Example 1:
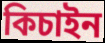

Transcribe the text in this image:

কিচাইন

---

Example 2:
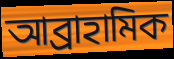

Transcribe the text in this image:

আব্রাহামিক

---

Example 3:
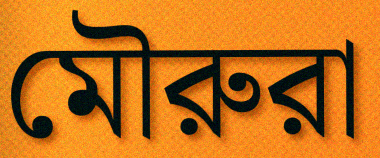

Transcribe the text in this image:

মৌরুরা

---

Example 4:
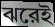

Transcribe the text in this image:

ঝরেই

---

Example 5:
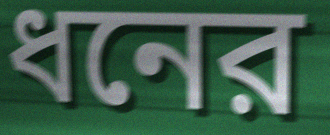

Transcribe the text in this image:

ধনের